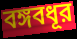
বঙ্গবধূর